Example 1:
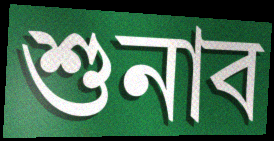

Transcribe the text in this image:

শুনাব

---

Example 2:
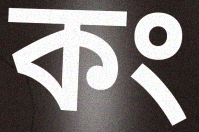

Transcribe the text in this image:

কং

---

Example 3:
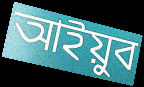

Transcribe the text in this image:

আইয়ুব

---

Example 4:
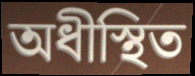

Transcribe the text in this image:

অধীস্থিত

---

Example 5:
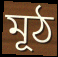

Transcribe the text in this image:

মূঠ